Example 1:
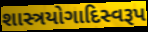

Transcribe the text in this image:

શાસ્ત્રયોગાદિસ્વરૂપ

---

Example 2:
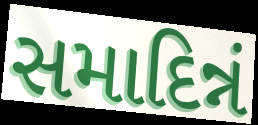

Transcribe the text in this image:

સમાદિન્નં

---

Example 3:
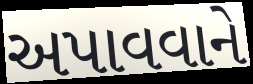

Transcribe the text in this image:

અપાવવાને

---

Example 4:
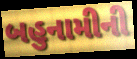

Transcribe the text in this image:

બહુનામીની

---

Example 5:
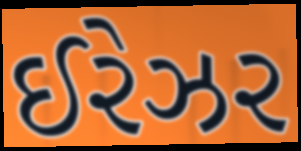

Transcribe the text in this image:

ઈરેઝર